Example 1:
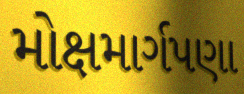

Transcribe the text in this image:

મોક્ષમાર્ગપણા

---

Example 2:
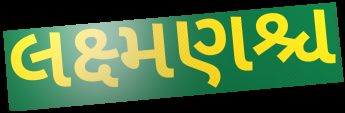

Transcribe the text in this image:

લક્ષ્મણશ્ચ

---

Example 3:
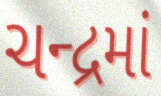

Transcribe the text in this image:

ચન્દ્રમાં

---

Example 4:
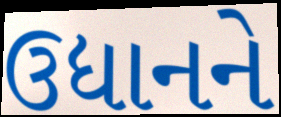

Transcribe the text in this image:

ઉદ્યાનને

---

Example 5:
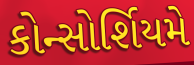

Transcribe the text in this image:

કોન્સોર્શિયમે